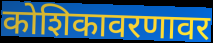
कोशिकावरणावर